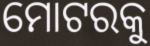
ମୋଟରକୁ